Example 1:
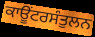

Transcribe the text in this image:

ਕਾਊਂਟਰਸੰਤੁਲਨ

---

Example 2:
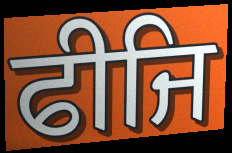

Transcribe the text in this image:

ਫੀਜਿ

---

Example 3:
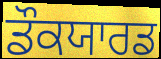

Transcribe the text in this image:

ਡੌਕਯਾਰਡ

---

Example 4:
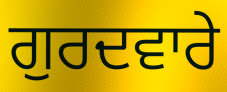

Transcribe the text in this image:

ਗੁਰਦਵਾਰੇ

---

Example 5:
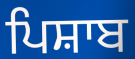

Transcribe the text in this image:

ਪਿਸ਼ਾਬ